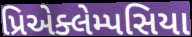
પ્રિએક્લેમ્પસિયા